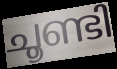
ചൂണ്ടി